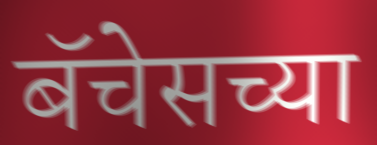
बॅचेसच्या